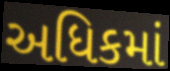
અધિકમાં